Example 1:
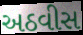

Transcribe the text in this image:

અઠવીસ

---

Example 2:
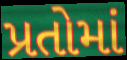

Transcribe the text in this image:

પ્રતોમાં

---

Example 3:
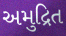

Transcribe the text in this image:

અમુદ્રિત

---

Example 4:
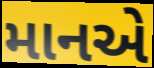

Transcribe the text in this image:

માનએ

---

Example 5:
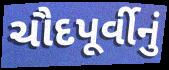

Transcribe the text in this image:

ચૌદપૂર્વીનું